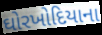
ઘોરખોદિયાના